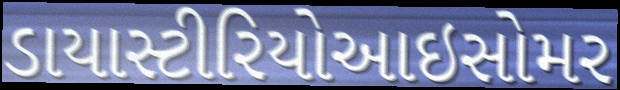
ડાયાસ્ટીરિયોઆઇસોમર